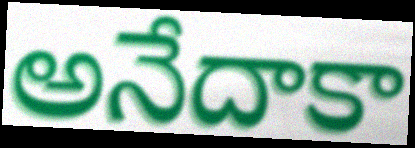
అనేదాకా